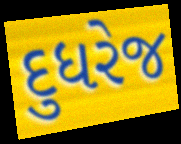
દુધરેજ